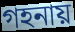
গহনায়